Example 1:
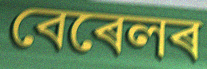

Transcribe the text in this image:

বেৰেলৰ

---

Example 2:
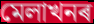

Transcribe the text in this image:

মেলাখনৰ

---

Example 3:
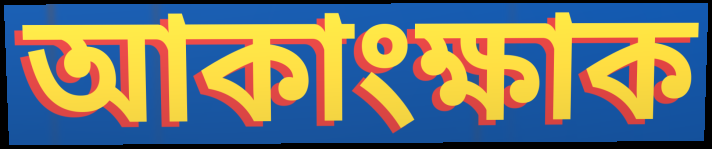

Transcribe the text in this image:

আকাংক্ষাক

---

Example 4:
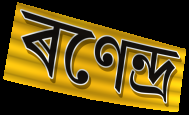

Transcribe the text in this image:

ৰণেন্দ্ৰ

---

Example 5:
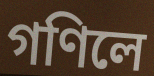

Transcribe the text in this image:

গণিলে